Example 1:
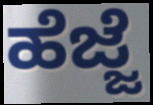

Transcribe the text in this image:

ಹೆಜ್ಜೆ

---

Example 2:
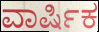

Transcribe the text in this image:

ವಾರ್ಷಿಕ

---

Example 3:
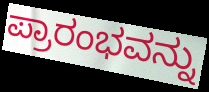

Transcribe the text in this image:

ಪ್ರಾರಂಭವನ್ನು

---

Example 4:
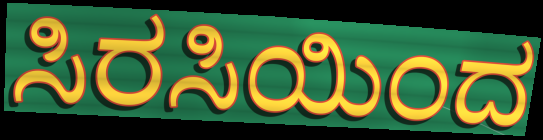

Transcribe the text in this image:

ಸಿರಸಿಯಿಂದ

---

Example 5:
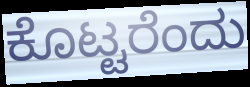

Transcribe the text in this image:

ಕೊಟ್ಟರೆಂದು